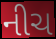
નીચ